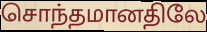
சொந்தமானதிலே